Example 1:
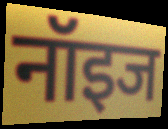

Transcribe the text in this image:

नॉइज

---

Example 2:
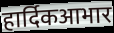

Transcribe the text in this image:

हार्दिकआभार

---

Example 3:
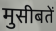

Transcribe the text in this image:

मुसीबतें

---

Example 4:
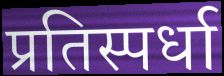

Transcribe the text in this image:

प्रतिस्पर्धा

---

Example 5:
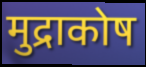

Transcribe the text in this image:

मुद्राकोष